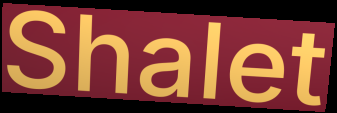
Shalet